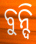
ବୁନ୍ଦି